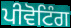
ਪੀਵੋਟਿੰਗ